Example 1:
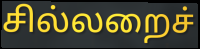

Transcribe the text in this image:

சில்லறைச்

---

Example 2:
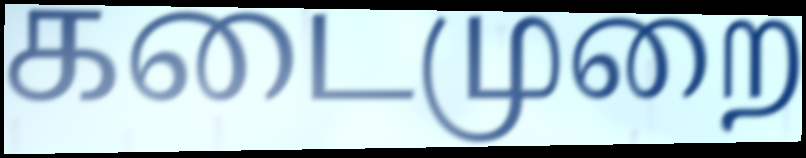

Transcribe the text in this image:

கடைமுறை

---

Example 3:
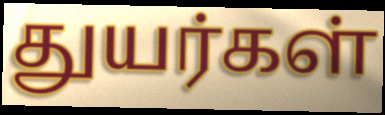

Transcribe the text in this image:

துயர்கள்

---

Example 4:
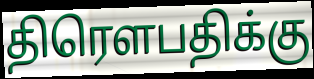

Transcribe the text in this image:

திரௌபதிக்கு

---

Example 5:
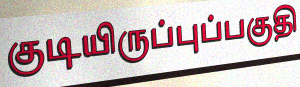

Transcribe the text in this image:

குடியிருப்புப்பகுதி